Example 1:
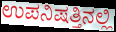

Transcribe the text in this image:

ಉಪನಿಷತ್ತಿನಲ್ಲಿ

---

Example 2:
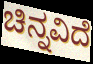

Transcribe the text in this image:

ಚಿನ್ನವಿದೆ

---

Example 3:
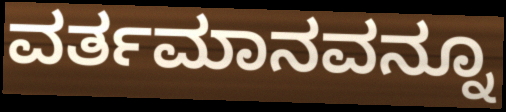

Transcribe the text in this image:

ವರ್ತಮಾನವನ್ನೂ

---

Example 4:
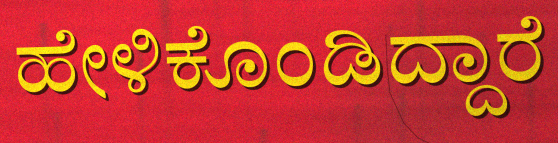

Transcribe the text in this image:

ಹೇಳಿಕೊಂಡಿದ್ದಾರೆ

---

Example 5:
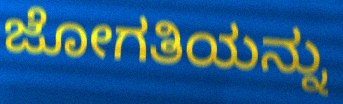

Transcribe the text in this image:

ಜೋಗತಿಯನ್ನು